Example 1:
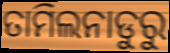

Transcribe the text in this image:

ତାମିଲନାଡୁରୁ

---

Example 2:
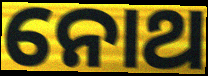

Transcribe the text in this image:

ନୋଥ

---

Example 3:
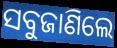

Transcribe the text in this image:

ସବୁଜାଣିଲେ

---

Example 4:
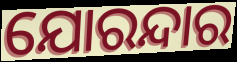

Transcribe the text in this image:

ଯୋରନ୍ଦାର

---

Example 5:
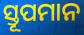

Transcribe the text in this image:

ସ୍ତୂପମାନ